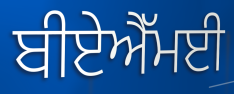
ਬੀਏਐੱਮਈ